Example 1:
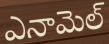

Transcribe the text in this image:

ఎనామెల్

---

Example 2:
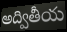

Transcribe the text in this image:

అద్వితీయ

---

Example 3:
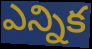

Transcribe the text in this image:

ఎన్నిక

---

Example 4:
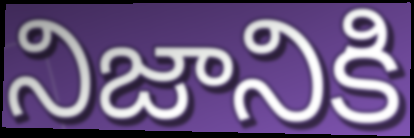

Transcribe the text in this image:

నిజానికి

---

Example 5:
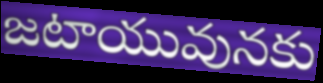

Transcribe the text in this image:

జటాయువునకు